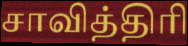
சாவித்திரி